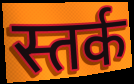
स्तर्क